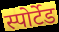
स्पोर्टेड